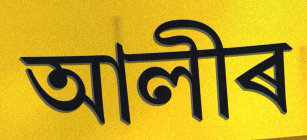
আলীৰ